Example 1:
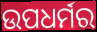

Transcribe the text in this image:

ଉପଧର୍ମର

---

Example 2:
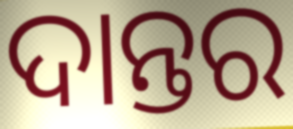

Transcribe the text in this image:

ଦାନ୍ତର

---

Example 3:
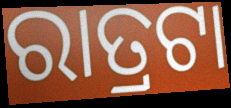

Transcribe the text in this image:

ରାତ୍ରଟା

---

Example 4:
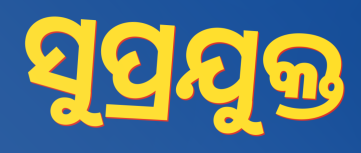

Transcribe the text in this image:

ସୁପ୍ରଯୁକ୍ତ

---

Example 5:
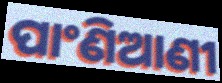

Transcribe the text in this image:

ପାଂଣିଆଣୀ